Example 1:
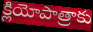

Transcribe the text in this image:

క్లియోపాత్రాకు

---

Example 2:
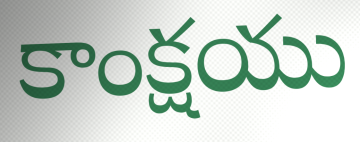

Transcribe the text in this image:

కాంక్షయు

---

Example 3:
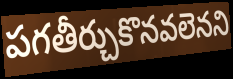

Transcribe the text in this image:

పగతీర్చుకొనవలెనని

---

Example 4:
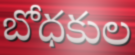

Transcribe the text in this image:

బోధకుల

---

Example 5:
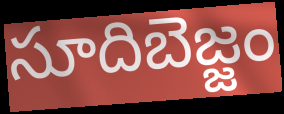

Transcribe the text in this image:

సూదిబెజ్జం